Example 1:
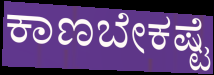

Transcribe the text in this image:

ಕಾಣಬೇಕಷ್ಟೆ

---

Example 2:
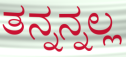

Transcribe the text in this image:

ತನ್ನನ್ನಲ್ಲ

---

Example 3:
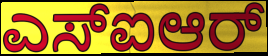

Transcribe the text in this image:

ಎಸ್ಐಆರ್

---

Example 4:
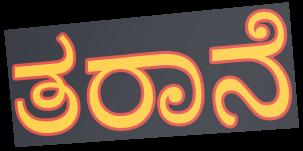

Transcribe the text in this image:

ತರಾನೆ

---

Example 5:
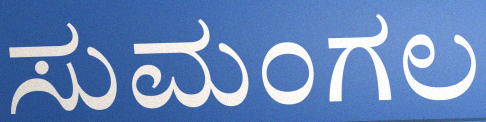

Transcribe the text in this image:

ಸುಮಂಗಲ